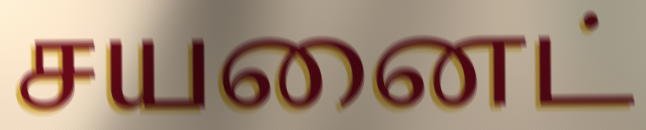
சயனைட்